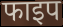
फाइप